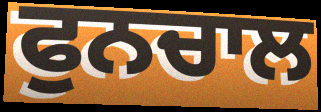
ਫੁਨਚਾਲ